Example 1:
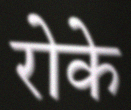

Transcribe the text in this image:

रोके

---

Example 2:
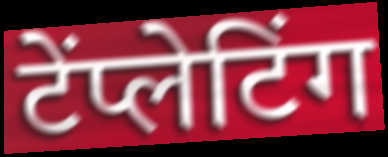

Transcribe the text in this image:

टेंप्लेटिंग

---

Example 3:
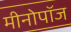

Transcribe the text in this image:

मीनोपॉज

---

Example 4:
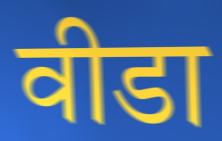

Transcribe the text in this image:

वीडा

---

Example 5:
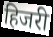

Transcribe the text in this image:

हिजरी